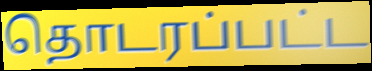
தொடரப்பட்ட